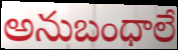
అనుబంధాలే